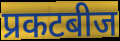
प्रकटबीज